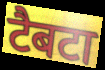
टैबटा